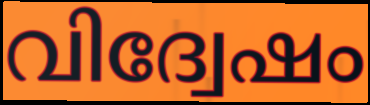
വിദ്വേഷം